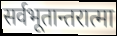
सर्वभूतान्तरात्मा